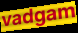
vadgam